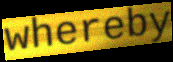
whereby